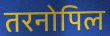
तरनोपिल